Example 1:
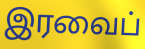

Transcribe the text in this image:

இரவைப்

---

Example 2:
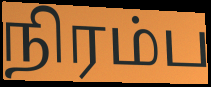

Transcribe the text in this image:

நிரம்ப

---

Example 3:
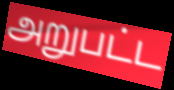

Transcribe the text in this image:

அறுபட்ட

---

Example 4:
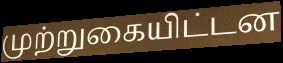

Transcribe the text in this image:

முற்றுகையிட்டன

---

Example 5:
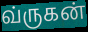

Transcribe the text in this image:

வ்ருகன்